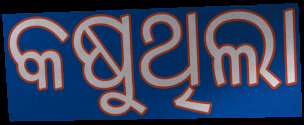
କଷୁଥିଲା